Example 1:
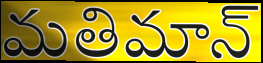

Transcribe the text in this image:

మతిమాన్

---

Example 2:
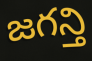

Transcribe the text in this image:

జగన్తి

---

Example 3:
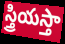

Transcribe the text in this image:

స్త్రియస్తా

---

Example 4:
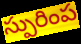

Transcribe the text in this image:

స్పురింప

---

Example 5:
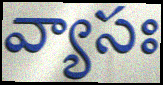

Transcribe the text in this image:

వ్యాసః